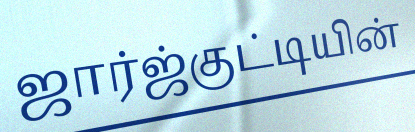
ஜார்ஜ்குட்டியின்